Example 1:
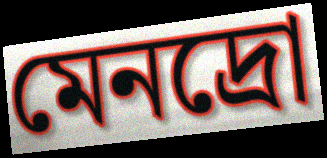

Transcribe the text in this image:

মেনদ্রো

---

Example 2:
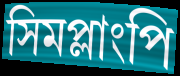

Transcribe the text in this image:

সিমপ্লাংপি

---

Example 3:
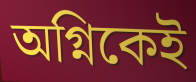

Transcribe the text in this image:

অগ্নিকেই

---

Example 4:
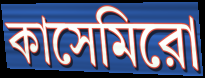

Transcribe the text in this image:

কাসেমিরো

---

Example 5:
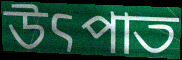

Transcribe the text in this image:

উৎপাত